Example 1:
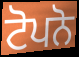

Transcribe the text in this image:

ਟੋਪਨੋ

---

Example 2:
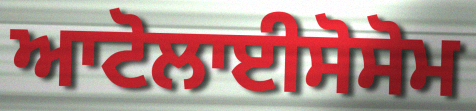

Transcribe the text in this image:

ਆਟੋਲਾਈਸੋਸੋਮ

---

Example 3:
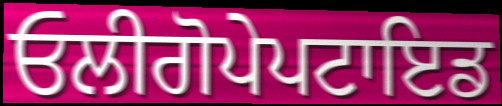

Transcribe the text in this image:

ਓਲੀਗੋਪੇਪਟਾਇਡ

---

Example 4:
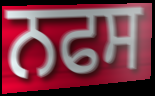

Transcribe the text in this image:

ਨਫਸ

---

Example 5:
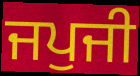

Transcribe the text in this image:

ਜਪੁਜੀ